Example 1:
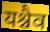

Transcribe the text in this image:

यश्चैव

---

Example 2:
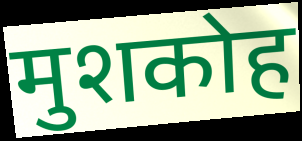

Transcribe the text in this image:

मुशकोह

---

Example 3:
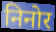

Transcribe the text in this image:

निनोर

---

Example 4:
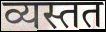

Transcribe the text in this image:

व्यस्तत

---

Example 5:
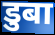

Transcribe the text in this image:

डुबा